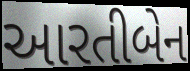
આરતીબેન